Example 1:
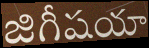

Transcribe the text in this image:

జిగీషయా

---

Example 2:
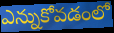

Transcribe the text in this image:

ఎన్నుకోవడంలో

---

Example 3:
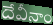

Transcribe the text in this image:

దేవీనాం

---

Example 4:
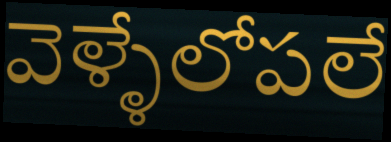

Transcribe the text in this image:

వెళ్ళేలోపలే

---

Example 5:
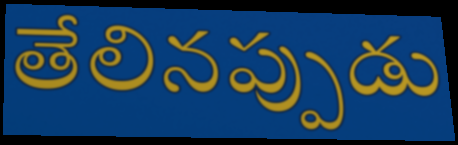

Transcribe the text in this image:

తేలినప్పుడు